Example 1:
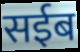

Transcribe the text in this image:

सईब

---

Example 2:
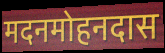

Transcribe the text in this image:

मदनमोहनदास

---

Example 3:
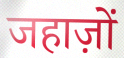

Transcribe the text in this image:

जहाज़ों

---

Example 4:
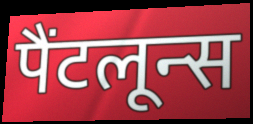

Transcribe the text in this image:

पैंटलून्स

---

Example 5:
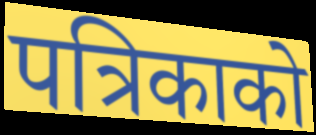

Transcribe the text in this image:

पत्रिकाको